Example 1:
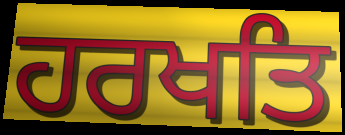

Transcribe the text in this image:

ਹਰਖਤਿ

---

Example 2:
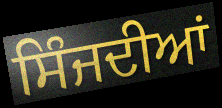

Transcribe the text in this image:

ਸਿੰਜਦੀਆਂ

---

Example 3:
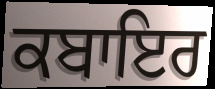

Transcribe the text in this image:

ਕਬਾਇਰ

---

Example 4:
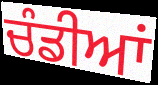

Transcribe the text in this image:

ਚੰਡੀਆਂ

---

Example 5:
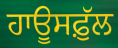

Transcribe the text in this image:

ਹਾਊਸਫ਼ੁੱਲ